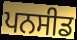
ਪਨਸੀਡ